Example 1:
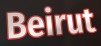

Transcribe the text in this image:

Beirut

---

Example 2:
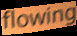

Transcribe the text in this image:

flowing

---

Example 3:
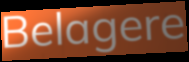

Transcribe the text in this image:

Belagere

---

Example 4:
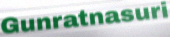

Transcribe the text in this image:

Gunratnasuri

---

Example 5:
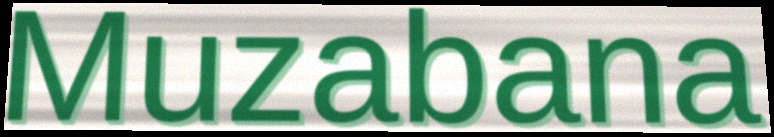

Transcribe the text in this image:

Muzabana